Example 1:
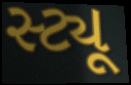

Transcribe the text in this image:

સ્ટ્યૂ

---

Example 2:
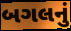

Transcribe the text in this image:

બગલનું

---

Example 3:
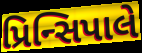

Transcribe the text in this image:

પ્રિન્સિપાલે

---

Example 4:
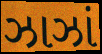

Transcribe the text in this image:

ઝાઝાં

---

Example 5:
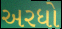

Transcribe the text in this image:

અરધો